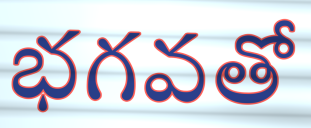
భగవతో